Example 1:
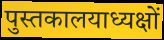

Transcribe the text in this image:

पुस्तकालयाध्यक्षों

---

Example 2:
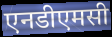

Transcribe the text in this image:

एनडीएमसी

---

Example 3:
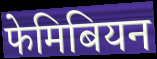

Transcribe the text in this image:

फेमिबियन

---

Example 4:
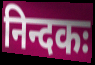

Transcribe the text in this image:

निन्दकः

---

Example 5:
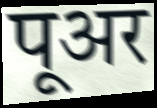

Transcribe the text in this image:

पूअर